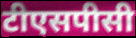
टीएसपीसी